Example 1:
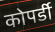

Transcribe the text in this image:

कोपर्डी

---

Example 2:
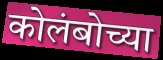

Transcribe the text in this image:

कोलंबोच्या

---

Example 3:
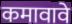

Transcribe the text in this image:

कमावावे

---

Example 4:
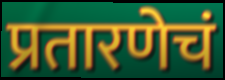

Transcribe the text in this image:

प्रतारणेचं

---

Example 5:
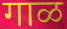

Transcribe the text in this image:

गाळ